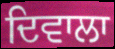
ਦਿਵਾਲਾ